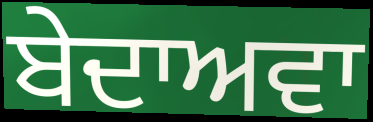
ਬੇਦਾਅਵਾ